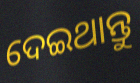
ଦେଇଥାନ୍ତୁ